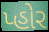
પ્હોર